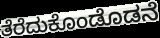
ತೆರೆದುಕೊಂಡೊಡನೆ